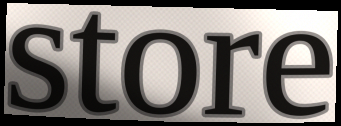
store